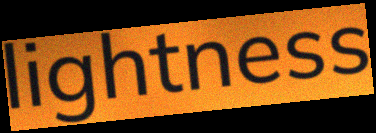
lightness